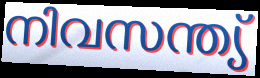
നിവസന്ത്യ്